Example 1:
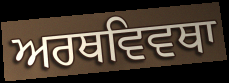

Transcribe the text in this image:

ਅਰਥਵਿਵਥਾ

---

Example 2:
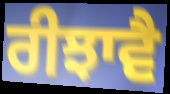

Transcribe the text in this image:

ਰੀਝਾਵੈ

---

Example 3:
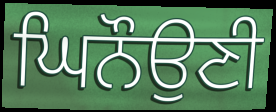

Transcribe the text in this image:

ਘਿਨੌਉਣੀ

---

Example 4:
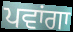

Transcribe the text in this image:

ਪਵਾਂਗਾ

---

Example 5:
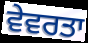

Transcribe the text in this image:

ਵੇਵਰਤਾ